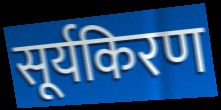
सूर्यकिरण